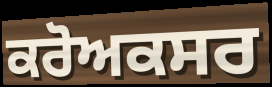
ਕਰੋਅਕਸਰ